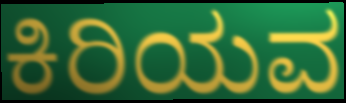
ಕಿರಿಯವ